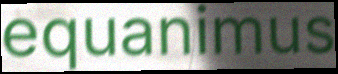
equanimus